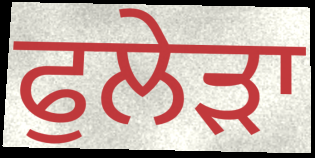
ਫੁਲੇੜਾ